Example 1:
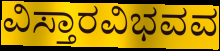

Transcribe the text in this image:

ವಿಸ್ತಾರವಿಭವವ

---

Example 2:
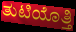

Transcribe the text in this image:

ತುಟಿಯೊತ್ತಿ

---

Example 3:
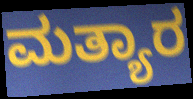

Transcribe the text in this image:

ಮತ್ಯಾರ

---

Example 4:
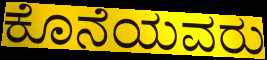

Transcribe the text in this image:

ಕೊನೆಯವರು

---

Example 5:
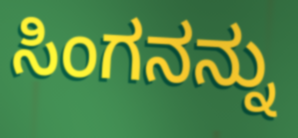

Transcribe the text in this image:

ಸಿಂಗನನ್ನು